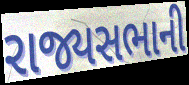
રાજ્યસભાની